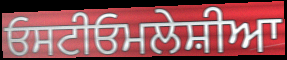
ਓਸਟੀਓਮਲੇਸ਼ੀਆ